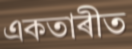
একতাৰীত